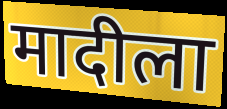
मादीला